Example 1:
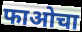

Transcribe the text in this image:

फाओचा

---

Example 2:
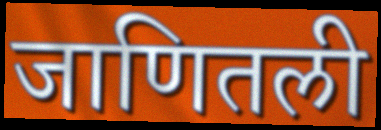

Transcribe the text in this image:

जाणितली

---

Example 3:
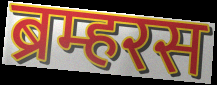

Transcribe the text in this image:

ब्रम्हरस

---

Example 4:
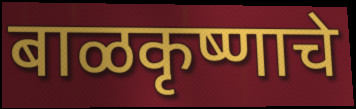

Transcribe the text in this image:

बाळकृष्णाचे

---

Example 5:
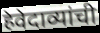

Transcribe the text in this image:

हेवेदाव्यांची